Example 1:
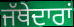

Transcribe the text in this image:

ਜੱਥੇਦਾਰਾਂ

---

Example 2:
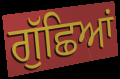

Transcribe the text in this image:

ਗੁੱਛਿਆਂ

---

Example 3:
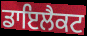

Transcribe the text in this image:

ਡਾਇਲੈਕਟ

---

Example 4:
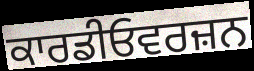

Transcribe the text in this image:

ਕਾਰਡੀਓਵਰਜ਼ਨ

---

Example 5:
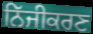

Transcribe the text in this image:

ਨਿੱਜੀਕਰਣ